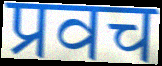
प्रवच